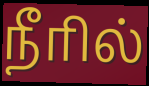
நீரில்